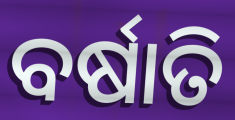
ବର୍ଷାତି